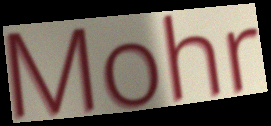
Mohr